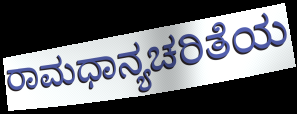
ರಾಮಧಾನ್ಯಚರಿತೆಯ